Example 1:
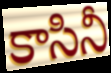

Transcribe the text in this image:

కాసినీ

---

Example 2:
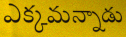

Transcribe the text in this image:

ఎక్కమన్నాడు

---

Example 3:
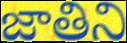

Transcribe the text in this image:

జాతిని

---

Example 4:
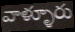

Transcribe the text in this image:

వాళ్ళూరు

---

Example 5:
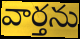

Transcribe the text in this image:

వార్తను